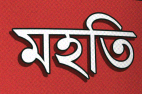
মহতি